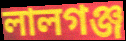
লালগঞ্জ